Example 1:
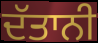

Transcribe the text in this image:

ਦੱਤਾਨੀ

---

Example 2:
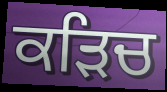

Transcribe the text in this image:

ਕੜਿਚ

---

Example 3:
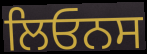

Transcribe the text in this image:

ਲਿਓਨਸ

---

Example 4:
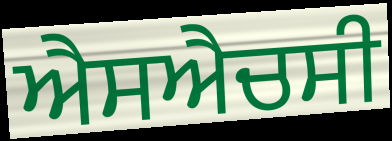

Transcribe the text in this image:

ਐਸਐਚਸੀ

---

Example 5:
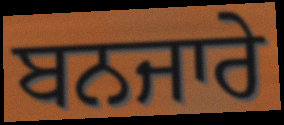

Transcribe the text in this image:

ਬਨਜਾਰੇ